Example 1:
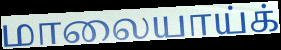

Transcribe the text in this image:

மாலையாய்க்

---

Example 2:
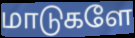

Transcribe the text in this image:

மாடுகளே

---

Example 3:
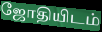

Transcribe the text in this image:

ஜோதியிடம்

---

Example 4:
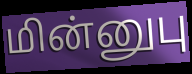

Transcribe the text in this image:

மின்னுபு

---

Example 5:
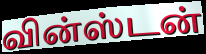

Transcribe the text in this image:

வின்ஸ்டன்